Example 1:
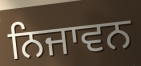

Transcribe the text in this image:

ਨਿਜਾਵਨ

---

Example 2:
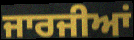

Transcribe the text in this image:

ਜਾਰਜੀਆਂ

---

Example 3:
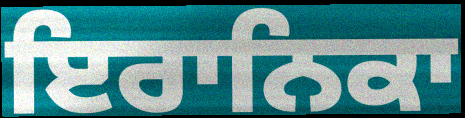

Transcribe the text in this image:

ਇਰਾਨਿਕਾ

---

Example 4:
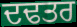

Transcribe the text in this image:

ਦਢਤਰ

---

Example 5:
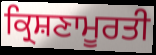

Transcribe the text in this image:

ਕ੍ਰਿਸ਼ਣਾਮੂਰਤੀ